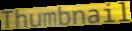
Thumbnail